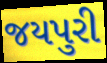
જયપુરી